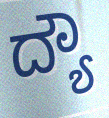
ದ್ಯೌ